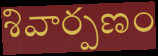
శివార్పణం